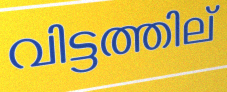
വിട്ടത്തില്